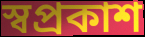
স্বপ্ৰকাশ